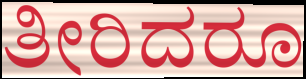
ತೀರಿದರೂ